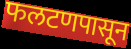
फलटणपासून